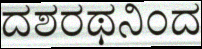
ದಶರಥನಿಂದ